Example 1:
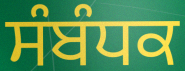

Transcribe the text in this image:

ਸੰਬੰਧਕ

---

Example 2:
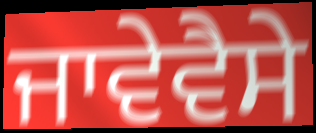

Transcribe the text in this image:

ਜਾਵੇਵੈਸੇ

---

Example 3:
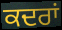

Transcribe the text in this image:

ਕਦਰਾਂ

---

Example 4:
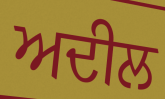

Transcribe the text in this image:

ਅਦੀਲ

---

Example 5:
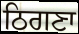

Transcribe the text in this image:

ਠਿਗਣਾ